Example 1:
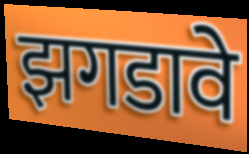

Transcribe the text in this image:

झगडावे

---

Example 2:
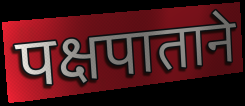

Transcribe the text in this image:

पक्षपाताने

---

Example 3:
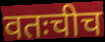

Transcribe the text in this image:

वतःचीच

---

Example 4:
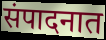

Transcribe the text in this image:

संपादनात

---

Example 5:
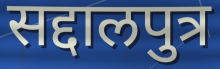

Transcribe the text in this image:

सद्दालपुत्र